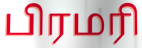
பிரமரி